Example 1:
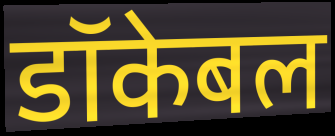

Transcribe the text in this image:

डॉकेबल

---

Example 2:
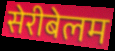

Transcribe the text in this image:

सेरीबेलम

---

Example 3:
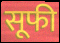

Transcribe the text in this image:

सूफी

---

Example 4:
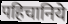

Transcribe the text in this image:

पहिचानिये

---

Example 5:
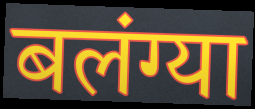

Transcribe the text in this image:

बलंग्या